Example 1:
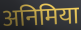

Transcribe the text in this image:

अनिमिया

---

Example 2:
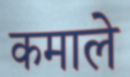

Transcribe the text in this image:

कमाले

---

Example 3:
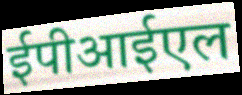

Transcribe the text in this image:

ईपीआईएल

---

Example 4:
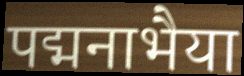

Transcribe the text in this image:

पद्मनाभैया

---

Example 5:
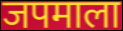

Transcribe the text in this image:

जपमाला